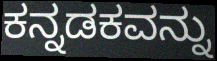
ಕನ್ನಡಕವನ್ನು